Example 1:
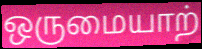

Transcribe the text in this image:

ஒருமையாற்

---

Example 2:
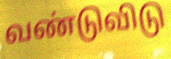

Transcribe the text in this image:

வண்டுவிடு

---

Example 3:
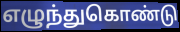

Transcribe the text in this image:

எழுந்துகொண்டு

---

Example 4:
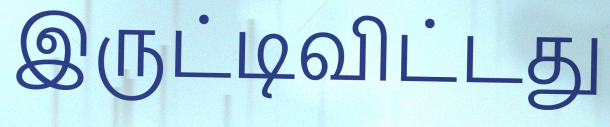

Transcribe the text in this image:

இருட்டிவிட்டது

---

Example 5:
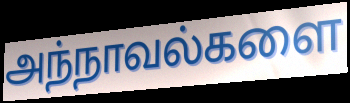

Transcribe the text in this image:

அந்நாவல்களை